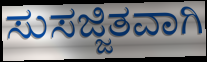
ಸುಸಜ್ಜಿತವಾಗಿ